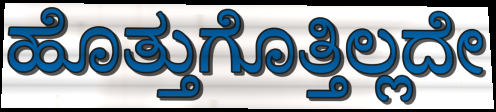
ಹೊತ್ತುಗೊತ್ತಿಲ್ಲದೇ